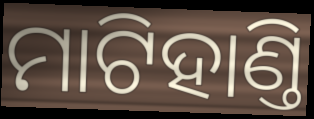
ମାଟିହାଣ୍ତି